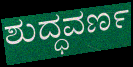
ಶುದ್ಧವರ್ಣ